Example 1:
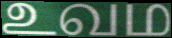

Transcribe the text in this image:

உவம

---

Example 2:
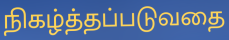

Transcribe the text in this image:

நிகழ்த்தப்படுவதை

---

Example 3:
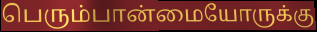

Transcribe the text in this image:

பெரும்பான்மையோருக்கு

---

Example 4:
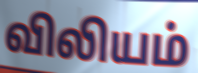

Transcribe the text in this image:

விலியம்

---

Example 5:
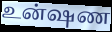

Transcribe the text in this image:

உன்ஷண